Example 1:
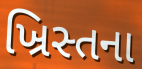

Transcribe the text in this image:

ખ્રિસ્તના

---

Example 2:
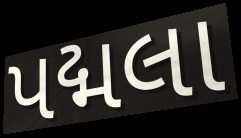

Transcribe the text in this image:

પદ્મલા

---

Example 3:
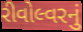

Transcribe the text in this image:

રીવોલ્વરનું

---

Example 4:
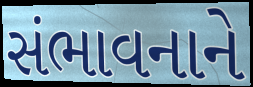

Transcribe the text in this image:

સંભાવનાને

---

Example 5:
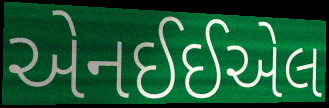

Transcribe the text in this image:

એનઈઈએલ